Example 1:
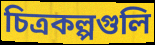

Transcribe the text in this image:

চিত্রকল্পগুলি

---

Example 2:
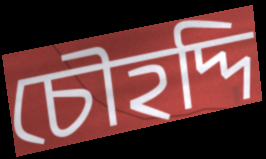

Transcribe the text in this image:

চৌহদ্দি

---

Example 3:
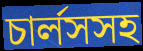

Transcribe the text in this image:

চার্লসসহ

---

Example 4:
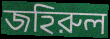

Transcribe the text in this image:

জহিরুল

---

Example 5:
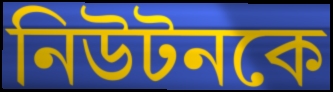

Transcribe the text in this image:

নিউটনকে